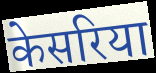
केसरिया